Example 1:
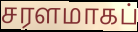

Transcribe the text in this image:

சரளமாகப்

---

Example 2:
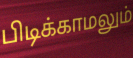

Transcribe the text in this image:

பிடிக்காமலும்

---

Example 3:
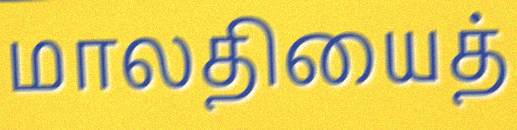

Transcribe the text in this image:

மாலதியைத்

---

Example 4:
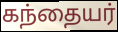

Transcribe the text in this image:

கந்தையர்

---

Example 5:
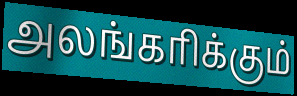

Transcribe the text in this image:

அலங்கரிக்கும்